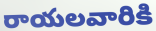
రాయలవారికి